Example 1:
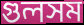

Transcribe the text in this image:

গুলসম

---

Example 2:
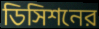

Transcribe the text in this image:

ডিসিশনের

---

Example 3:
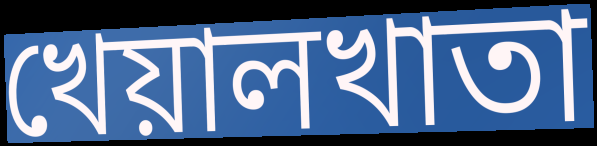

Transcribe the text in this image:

খেয়ালখাতা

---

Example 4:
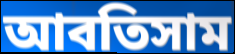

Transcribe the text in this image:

আবতিসাম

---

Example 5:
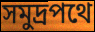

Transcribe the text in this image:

সমুদ্রপথে